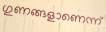
ഗുണങ്ങളാണെന്ന്